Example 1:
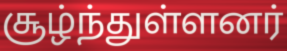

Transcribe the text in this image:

சூழ்ந்துள்ளனர்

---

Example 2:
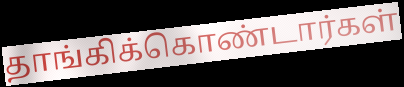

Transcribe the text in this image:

தாங்கிக்கொண்டார்கள்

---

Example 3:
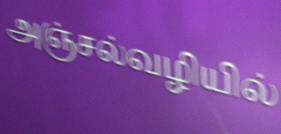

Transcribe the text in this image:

அஞ்சல்வழியில்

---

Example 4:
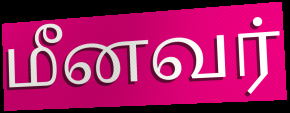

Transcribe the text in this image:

மீனவர்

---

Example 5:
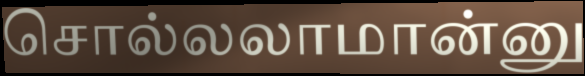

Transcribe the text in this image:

சொல்லலாமான்னு